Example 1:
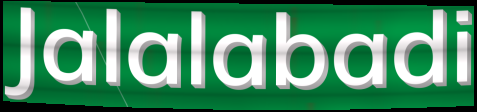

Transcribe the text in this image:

Jalalabadi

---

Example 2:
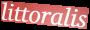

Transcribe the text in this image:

littoralis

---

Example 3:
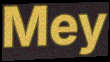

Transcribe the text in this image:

Mey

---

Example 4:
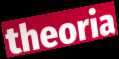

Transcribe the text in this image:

theoria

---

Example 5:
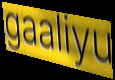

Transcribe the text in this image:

gaaliyu